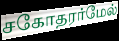
சகோதரர்மேல்